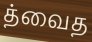
த்வைத